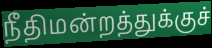
நீதிமன்றத்துக்குச்